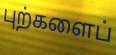
புற்களைப்